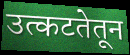
उत्कटतेतून